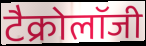
टैक्रोलॉजी